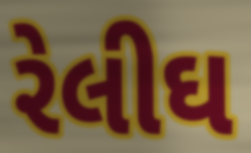
રેલીઘ